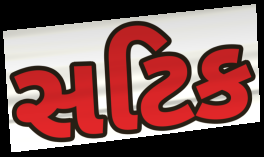
સટિક